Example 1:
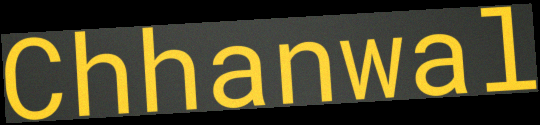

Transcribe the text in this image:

Chhanwal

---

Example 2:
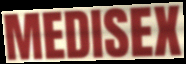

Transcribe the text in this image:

MEDISEX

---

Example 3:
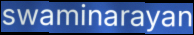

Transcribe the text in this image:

swaminarayan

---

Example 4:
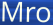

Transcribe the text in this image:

Mro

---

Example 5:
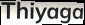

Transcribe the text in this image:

Thiyaga